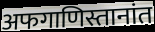
अफगाणिस्तानांत